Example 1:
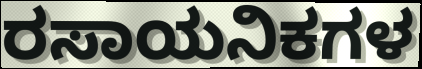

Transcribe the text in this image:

ರಸಾಯನಿಕಗಳ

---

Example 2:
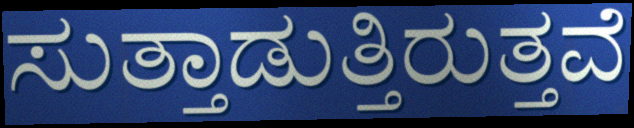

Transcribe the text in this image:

ಸುತ್ತಾಡುತ್ತಿರುತ್ತವೆ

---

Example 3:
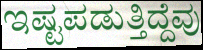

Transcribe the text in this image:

ಇಷ್ಟಪಡುತ್ತಿದ್ದೆವು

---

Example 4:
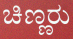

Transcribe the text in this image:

ಚಿಣ್ಣರು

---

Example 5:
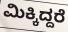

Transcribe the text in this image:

ಮಿಕ್ಕಿದ್ದರೆ